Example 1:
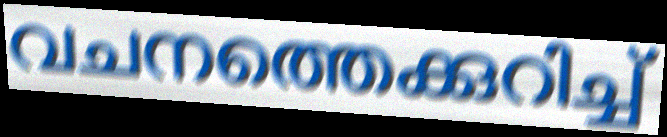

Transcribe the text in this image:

വചനത്തെക്കുറിച്ച്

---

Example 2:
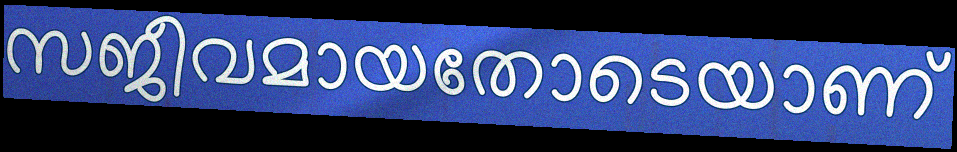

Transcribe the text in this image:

സജീവമായതോടെയാണ്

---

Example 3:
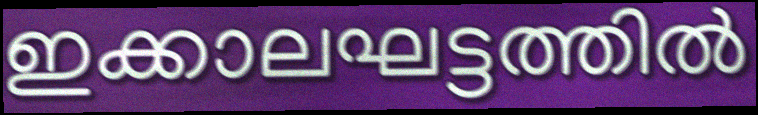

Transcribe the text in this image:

ഇക്കാലഘട്ടത്തിൽ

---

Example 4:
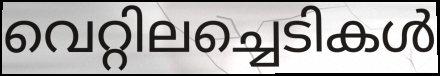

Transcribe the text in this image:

വെറ്റിലച്ചെടികൾ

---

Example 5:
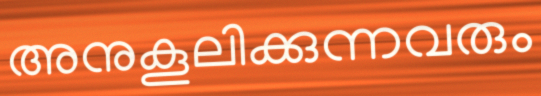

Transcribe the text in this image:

അനുകൂലിക്കുന്നവരും